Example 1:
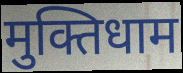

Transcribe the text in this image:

मुक्तिधाम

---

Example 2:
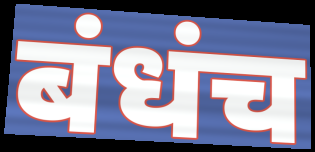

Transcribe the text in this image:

बंधंच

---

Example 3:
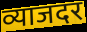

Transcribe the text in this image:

व्याजदर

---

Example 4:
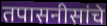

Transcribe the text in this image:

तपासनीसांचे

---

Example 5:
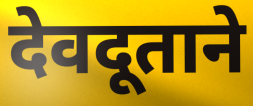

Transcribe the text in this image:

देवदूताने